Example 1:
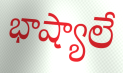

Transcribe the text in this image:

భాష్యాలే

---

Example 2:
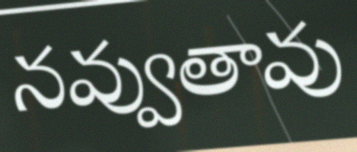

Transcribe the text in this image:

నవ్వుతావు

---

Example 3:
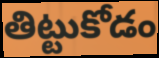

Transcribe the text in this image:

తిట్టుకోడం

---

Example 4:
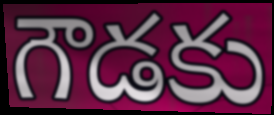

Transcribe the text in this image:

గౌడకు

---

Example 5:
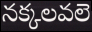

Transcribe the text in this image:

నక్కలవలె